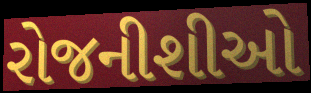
રોજનીશીઓ